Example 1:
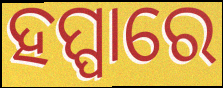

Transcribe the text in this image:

ହପ୍ପାରେ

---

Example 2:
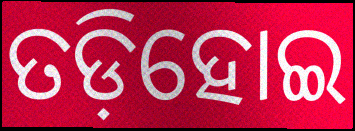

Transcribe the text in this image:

ତଡ଼ିହୋଇ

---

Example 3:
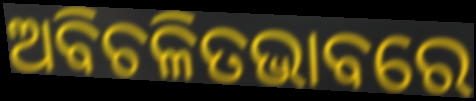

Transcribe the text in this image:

ଅବିଚଳିତଭାବରେ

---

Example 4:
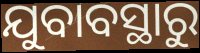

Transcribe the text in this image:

ଯୁବାବସ୍ଥାରୁ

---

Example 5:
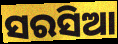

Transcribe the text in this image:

ସରସିଆ